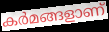
കർമങ്ങളാണ്